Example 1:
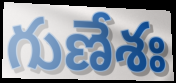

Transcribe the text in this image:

గుణేశః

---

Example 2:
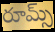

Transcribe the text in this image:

రూమ్స్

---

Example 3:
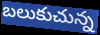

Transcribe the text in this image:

బలుకుచున్న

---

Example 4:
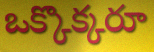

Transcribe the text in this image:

ఒక్కొక్కరూ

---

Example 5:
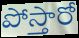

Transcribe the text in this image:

పోస్తారో